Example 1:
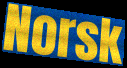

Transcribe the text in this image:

Norsk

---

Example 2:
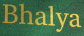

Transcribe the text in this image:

Bhalya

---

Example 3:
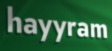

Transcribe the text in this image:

hayyram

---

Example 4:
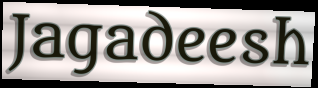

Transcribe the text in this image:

Jagadeesh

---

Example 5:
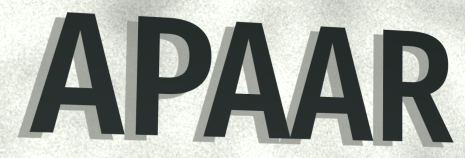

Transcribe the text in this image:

APAAR